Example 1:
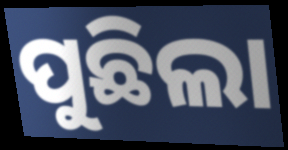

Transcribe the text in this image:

ପୁଛିଲା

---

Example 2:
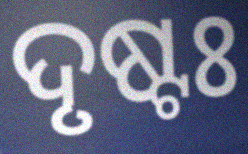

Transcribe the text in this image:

ଦୃଷ୍ଟଃ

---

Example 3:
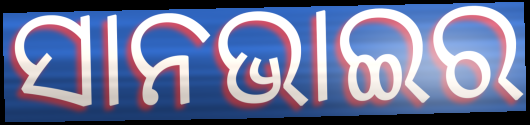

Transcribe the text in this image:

ସାନଭାଇର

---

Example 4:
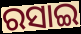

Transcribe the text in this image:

ରସାଇ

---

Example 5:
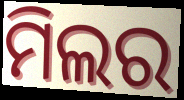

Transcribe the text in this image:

ମିଲର